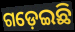
ଗଡ଼େଇଛି